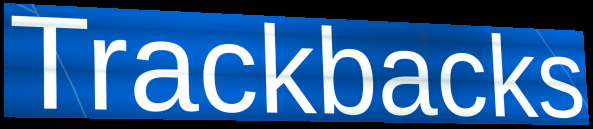
Trackbacks